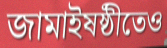
জামাইষষ্ঠীতেও